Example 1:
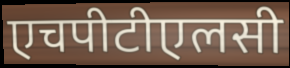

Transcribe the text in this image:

एचपीटीएलसी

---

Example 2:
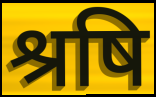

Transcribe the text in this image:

श्रषि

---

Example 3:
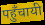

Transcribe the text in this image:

पहुँचायी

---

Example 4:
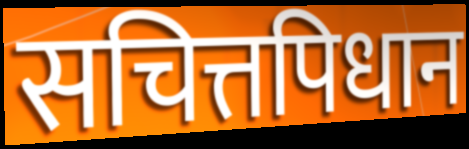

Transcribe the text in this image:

सचित्तपिधान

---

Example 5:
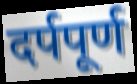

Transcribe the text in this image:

दर्पपूर्ण